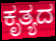
ಕೃತ್ಯದ